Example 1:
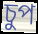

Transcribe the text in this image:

চুপ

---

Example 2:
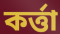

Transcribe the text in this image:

কৰ্ত্তা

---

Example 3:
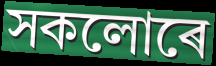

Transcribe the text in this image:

সকলোৰে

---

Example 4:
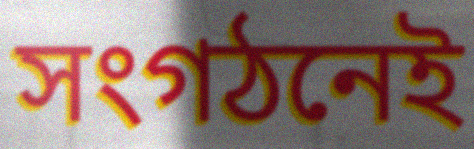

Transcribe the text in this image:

সংগঠনেই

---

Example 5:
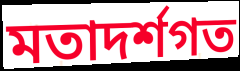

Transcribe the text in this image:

মতাদৰ্শগত